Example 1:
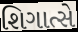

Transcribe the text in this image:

શિગાત્સે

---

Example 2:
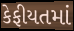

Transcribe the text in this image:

કેફીયતમાં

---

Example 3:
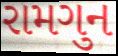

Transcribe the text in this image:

રામગુન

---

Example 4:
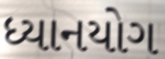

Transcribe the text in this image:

ધ્યાનયોગ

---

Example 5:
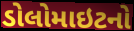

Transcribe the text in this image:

ડોલોમાઇટનો